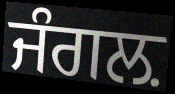
ਜੰਗਲ਼